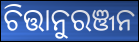
ଚିତ୍ତାନୁରଞ୍ଜନ